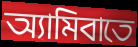
অ্যামিবাতে